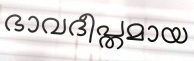
ഭാവദീപ്തമായ